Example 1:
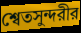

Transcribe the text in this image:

শ্বেতসুন্দরীর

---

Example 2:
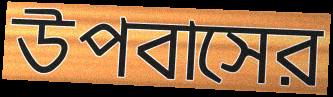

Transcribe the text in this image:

উপবাসের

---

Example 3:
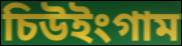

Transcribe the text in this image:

চিউইংগাম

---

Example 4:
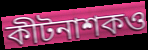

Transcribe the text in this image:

কীটনাশকও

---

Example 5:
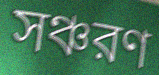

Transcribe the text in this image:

সঞ্চরণ